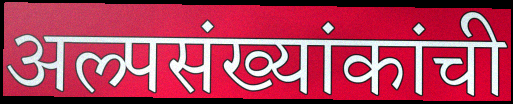
अल्पसंख्यांकांची